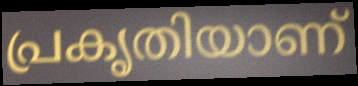
പ്രകൃതിയാണ്